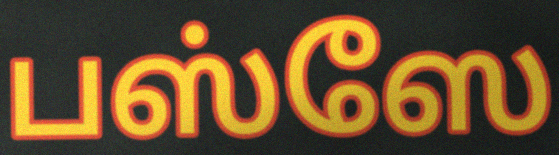
பஸ்ஸே